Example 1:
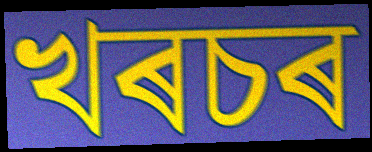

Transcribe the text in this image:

খৰচৰ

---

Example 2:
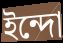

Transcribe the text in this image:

ইন্দো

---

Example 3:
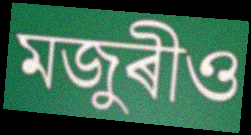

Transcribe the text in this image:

মজুৰীও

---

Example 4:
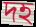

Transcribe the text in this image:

দহ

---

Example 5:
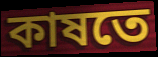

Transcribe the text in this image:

কাষতে